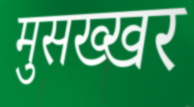
मुसख्खर